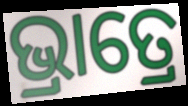
ଭ୍ରାତ୍ରେ